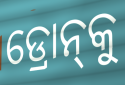
ଡ୍ରୋନ୍‌କୁ